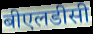
बीएलडीसी